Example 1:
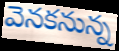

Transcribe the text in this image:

వెనకనున్న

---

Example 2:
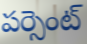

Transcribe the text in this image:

పర్సెంట్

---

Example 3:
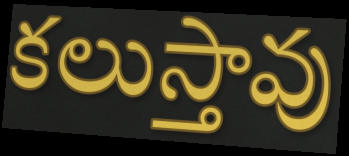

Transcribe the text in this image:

కలుస్తావు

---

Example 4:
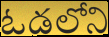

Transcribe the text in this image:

ఓడలోని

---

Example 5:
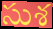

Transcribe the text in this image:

సుశ